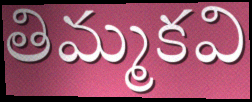
తిమ్మకవి